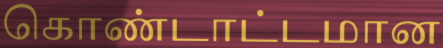
கொண்டாட்டமான